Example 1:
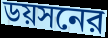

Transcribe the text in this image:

ডয়সনের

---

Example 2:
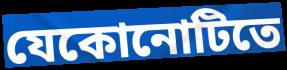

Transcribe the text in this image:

যেকোনোটিতে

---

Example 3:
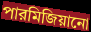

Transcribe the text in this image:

পারমিজিয়ানো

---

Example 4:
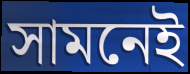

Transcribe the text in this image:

সামনেই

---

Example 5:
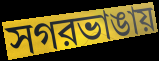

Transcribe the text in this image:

সগরভাঙায়